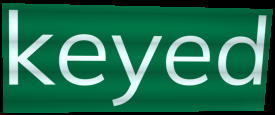
keyed